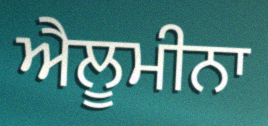
ਐਲੂਮੀਨਾ